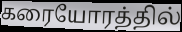
கரையோரத்தில்